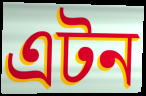
এটন